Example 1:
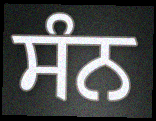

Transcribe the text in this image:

ਸੰਨ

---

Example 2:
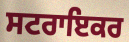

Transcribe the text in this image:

ਸਟਰਾਇਕਰ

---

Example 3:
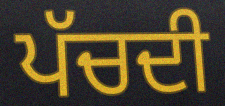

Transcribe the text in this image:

ਪੱਚਦੀ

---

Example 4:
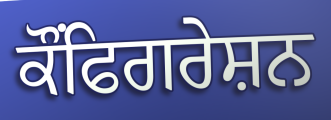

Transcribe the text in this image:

ਕੌਂਫਿਗਰੇਸ਼ਨ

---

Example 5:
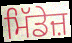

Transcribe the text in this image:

ਮਿੱਡੇਜ਼